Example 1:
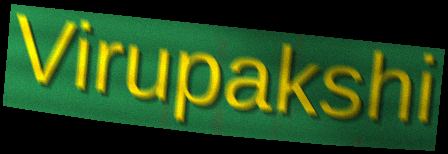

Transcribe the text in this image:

Virupakshi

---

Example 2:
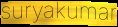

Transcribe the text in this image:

suryakumar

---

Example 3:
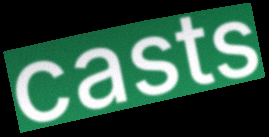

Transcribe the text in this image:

casts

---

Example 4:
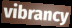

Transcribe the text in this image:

vibrancy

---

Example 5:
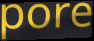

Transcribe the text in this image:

pore